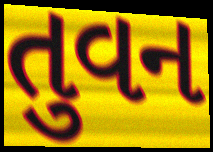
તુવન